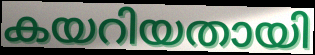
കയറിയതായി